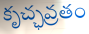
కృచ్ఛవ్రతం